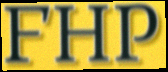
FHP